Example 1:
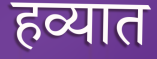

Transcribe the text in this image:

हव्यात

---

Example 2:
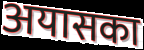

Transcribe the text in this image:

अयासका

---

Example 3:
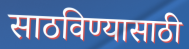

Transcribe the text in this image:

साठविण्यासाठी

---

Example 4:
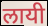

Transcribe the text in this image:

लायी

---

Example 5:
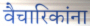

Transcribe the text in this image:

वैचारिकांना